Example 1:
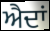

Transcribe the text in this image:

ਐਦਾਂ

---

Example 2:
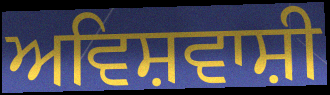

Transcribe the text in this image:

ਅਵਿਸ਼ਵਾਸ਼ੀ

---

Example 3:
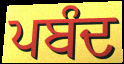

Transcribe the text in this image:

ਪਬੰਦ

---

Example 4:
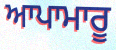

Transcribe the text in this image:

ਆਪਾਮਾਰੂ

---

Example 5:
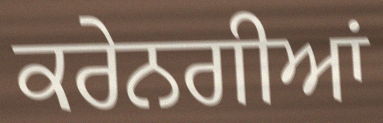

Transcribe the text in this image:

ਕਰੇਨਗੀਆਂ